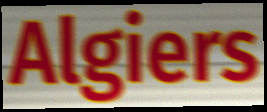
Algiers